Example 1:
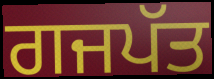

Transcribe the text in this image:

ਗਜਪੱਤ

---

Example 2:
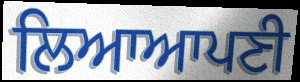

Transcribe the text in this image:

ਲਿਆਆਪਣੀ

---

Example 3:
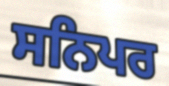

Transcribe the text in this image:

ਸਨਿਪਰ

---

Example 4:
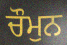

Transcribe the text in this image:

ਚੌਮੁਨ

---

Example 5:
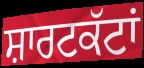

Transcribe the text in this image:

ਸ਼ਾਰਟਕੱਟਾਂ